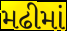
મઢીમાં